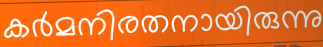
കർമനിരതനായിരുന്നു